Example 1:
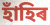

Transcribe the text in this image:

হাঁহিৰ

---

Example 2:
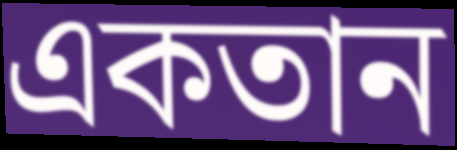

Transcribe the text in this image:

একতান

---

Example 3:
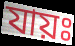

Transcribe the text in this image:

যায়ঃ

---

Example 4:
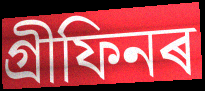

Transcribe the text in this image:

গ্ৰীফিনৰ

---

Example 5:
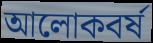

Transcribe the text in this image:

আলোকবৰ্ষ